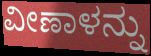
ವೀಣಾಳನ್ನು